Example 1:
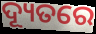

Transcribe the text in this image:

ଦ୍ୟୂତରେ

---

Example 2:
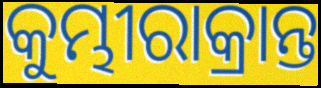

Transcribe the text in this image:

କୁମ୍ଭୀରାକ୍ରାନ୍ତ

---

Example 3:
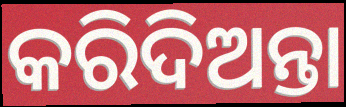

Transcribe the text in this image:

କରିଦିଅନ୍ତା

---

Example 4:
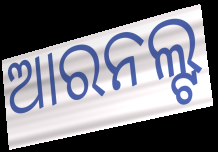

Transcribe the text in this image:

ଆରନଲ୍ଟ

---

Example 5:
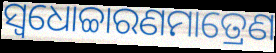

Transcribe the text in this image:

ସ୍ଵଧୋଚ୍ଚାରଣମାତ୍ରେଣ